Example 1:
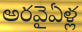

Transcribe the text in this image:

అరవైఏళ్ల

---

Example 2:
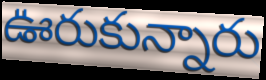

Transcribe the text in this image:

ఊరుకున్నారు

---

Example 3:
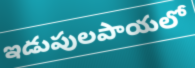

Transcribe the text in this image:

ఇడుపులపాయలో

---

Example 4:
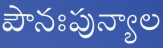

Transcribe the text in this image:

పౌనఃపున్యాల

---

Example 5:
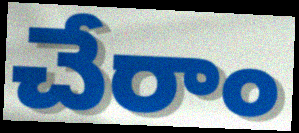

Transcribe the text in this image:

చేరాం